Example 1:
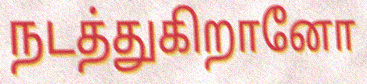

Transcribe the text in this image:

நடத்துகிறானோ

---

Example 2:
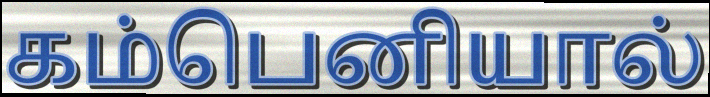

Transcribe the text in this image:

கம்பெனியால்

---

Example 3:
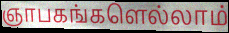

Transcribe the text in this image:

ஞாபகங்களெல்லாம்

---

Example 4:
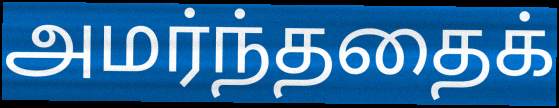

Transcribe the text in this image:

அமர்ந்ததைக்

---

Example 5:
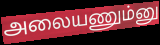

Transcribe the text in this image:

அலையணும்னு